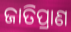
ଜାତିପ୍ରାଣ